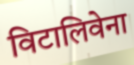
विटालिवेना